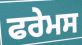
ਫਰੇਮਸ